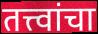
तत्त्वांचा